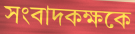
সংবাদকক্ষকে